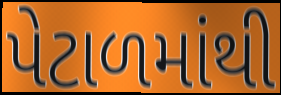
પેટાળમાંથી